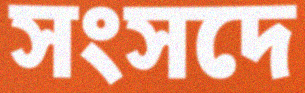
সংসদে